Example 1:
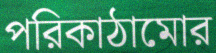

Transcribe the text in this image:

পরিকাঠামোর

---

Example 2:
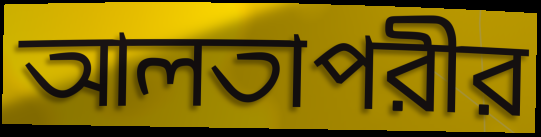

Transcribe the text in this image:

আলতাপরীর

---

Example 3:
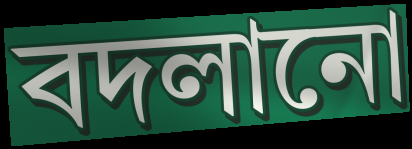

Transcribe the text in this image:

বদলানো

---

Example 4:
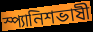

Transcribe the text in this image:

স্প্যানিশভাষী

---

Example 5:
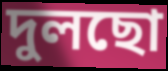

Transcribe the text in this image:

দুলছো